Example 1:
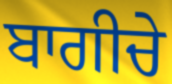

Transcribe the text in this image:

ਬਾਗੀਚੇ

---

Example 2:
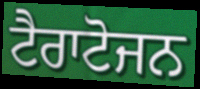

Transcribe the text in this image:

ਟੈਰਾਟੋਜਨ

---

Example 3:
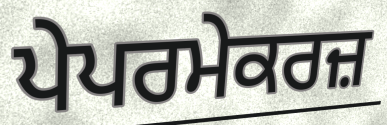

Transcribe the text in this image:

ਪੇਪਰਮੇਕਰਜ਼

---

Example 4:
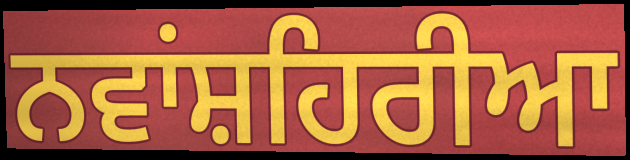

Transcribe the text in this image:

ਨਵਾਂਸ਼ਹਿਰੀਆ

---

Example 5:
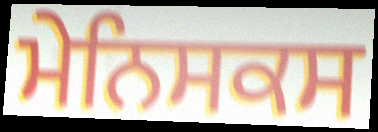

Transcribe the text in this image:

ਮੇਨਿਸਕਸ